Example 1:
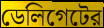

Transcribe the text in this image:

ডেলিগেটের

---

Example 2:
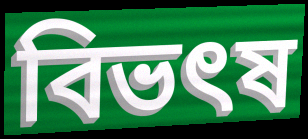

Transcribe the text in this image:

বিভৎষ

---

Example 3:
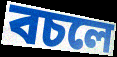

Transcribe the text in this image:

বচলে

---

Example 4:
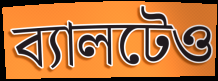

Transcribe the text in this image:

ব্যালটেও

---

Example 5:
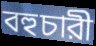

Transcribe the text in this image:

বহুচারী